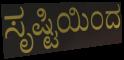
ಸೃಷ್ಟಿಯಿಂದ